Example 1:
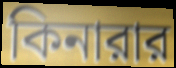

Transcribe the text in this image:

কিনারার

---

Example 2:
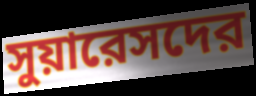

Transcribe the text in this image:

সুয়ারেসদের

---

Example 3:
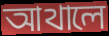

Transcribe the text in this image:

আথালে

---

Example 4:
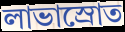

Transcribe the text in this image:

লাভাস্রোত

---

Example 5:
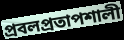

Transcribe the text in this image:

প্রবলপ্রতাপশালী